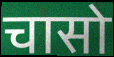
चासो